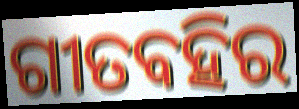
ଗୀତବହିର